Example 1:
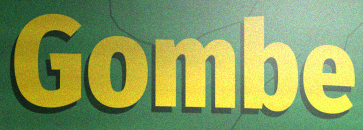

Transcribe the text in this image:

Gombe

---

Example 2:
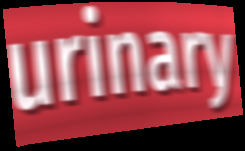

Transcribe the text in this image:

urinary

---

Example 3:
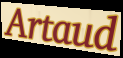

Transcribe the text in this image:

Artaud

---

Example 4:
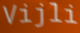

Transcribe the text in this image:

Vijli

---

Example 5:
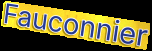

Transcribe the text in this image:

Fauconnier